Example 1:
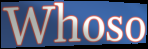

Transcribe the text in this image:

Whoso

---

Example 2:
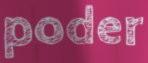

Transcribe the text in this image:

poder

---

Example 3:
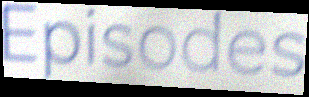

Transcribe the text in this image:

Episodes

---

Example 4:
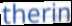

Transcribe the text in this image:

therin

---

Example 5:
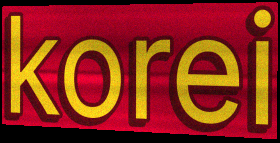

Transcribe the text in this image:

korei